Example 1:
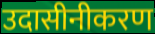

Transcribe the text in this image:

उदासीनीकरण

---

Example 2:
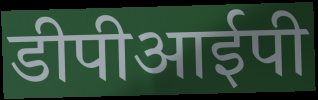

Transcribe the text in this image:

डीपीआईपी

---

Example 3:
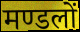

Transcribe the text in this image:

मण्डलों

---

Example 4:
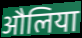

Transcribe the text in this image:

औलिया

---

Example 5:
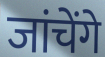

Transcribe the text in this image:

जांचेंगे